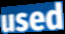
used